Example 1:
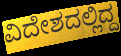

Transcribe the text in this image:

ವಿದೇಶದಲ್ಲಿದ್ದ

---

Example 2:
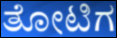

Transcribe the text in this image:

ತೋಟಿಗ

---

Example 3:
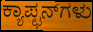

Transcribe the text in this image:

ಕ್ಯಾಪ್ಟನ್‌ಗಳು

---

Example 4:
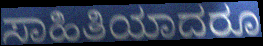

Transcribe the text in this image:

ಸಾಹಿತಿಯಾದರೂ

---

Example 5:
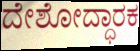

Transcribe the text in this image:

ದೇಶೋದ್ಧಾರಕ